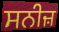
ਸਨੀਜ਼